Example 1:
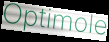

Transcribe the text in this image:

Optimole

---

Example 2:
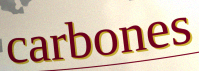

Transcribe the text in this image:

carbones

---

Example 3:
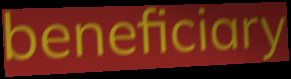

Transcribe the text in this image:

beneficiary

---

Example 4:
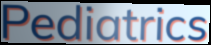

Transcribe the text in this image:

Pediatrics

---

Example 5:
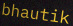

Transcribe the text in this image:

bhautik